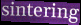
sintering